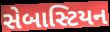
સેબાસ્ટિયન